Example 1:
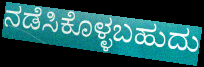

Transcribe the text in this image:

ನಡೆಸಿಕೊಳ್ಳಬಹುದು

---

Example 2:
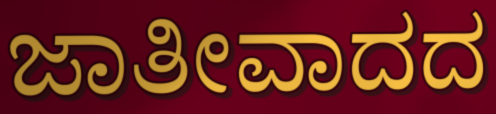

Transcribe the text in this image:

ಜಾತೀವಾದದ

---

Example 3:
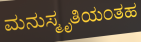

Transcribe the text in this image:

ಮನುಸ್ಮೃತಿಯಂತಹ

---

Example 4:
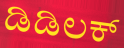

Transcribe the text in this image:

ಡಿಡಿಲಕ್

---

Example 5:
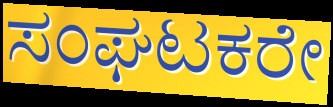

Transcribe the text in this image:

ಸಂಘಟಕರೇ